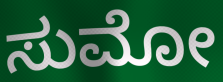
ಸುಮೋ